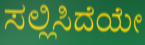
ಸಲ್ಲಿಸಿದೆಯೇ